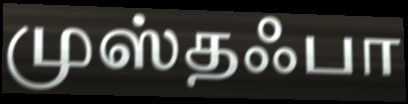
முஸ்தஃபா